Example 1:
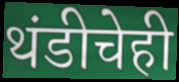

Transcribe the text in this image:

थंडीचेही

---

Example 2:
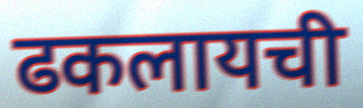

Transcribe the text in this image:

ढकलायची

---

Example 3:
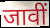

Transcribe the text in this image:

जावीं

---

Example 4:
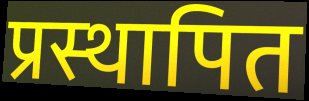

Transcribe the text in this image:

प्रस्थापित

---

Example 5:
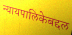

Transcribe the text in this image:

न्यायपालिकेबद्दल